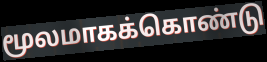
மூலமாகக்கொண்டு